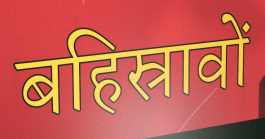
बहिस्रावों